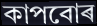
কাপবোৰ